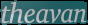
theavan